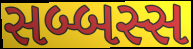
સબ્બસ્સ